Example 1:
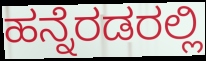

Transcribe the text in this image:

ಹನ್ನೆರಡರಲ್ಲಿ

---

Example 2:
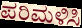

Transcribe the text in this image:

ಪರಿಮಳಿಸಿ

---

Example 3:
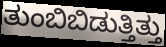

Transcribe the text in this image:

ತುಂಬಿಬಿಡುತ್ತಿತ್ತು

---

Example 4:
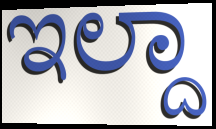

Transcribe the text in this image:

ಇಲ್ದಾ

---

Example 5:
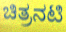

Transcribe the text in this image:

ಚಿತ್ರನಟಿ